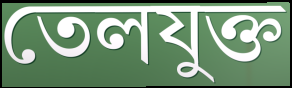
তেলযুক্ত